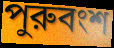
পুরুবংশ